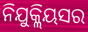
ନିଯୁକ୍ଲିୟସର